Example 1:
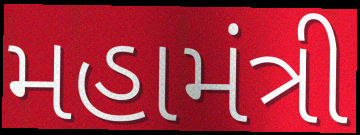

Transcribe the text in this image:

મહામંત્રી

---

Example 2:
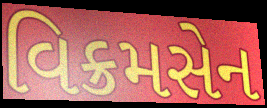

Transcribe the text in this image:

વિક્રમસેન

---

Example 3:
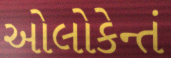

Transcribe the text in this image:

ઓલોકેન્તં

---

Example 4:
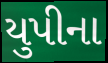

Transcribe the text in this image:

યુપીના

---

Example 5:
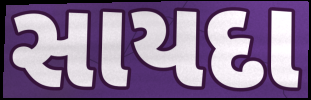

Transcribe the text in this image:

સાયદા